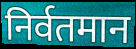
निर्वतमान